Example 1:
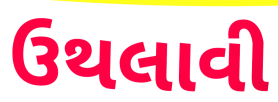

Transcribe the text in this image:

ઉથલાવી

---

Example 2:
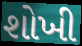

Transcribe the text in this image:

શોખી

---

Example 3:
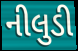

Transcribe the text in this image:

નીલુડી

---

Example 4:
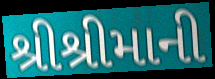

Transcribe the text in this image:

શ્રીશ્રીમાની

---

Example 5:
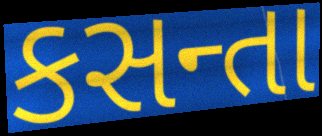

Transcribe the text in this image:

કસન્તા